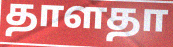
தாளதா